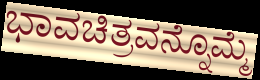
ಭಾವಚಿತ್ರವನ್ನೊಮ್ಮೆ